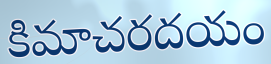
కిమాచరదయం